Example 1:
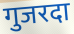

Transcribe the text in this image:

गुजरदा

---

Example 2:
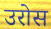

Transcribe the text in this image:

उरोस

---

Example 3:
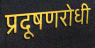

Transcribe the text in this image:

प्रदूषणरोधी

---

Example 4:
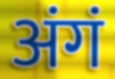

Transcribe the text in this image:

अंगं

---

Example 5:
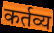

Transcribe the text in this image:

कर्तव्य